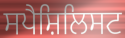
ਸਪੈਸ਼ਿਲਿਸਟ